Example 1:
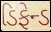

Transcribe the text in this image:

ડિફેન્ડ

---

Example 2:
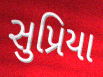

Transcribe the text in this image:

સુપ્રિયા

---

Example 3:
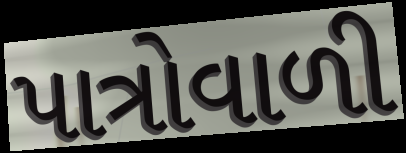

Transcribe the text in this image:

પાત્રોવાળી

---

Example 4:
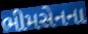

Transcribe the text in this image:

ભીમસેનના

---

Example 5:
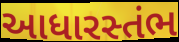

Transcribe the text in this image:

આધારસ્તંભ